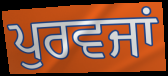
ਪੁਰਵਜਾਂ